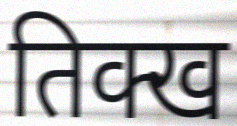
तिक्ख